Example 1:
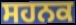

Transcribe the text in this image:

ਸਹਨਕ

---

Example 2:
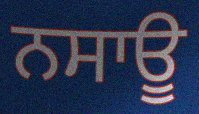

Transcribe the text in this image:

ਨਸਾਊ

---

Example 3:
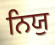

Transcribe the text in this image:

ਨਿਯੁ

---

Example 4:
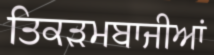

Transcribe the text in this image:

ਤਿਕੜਮਬਾਜੀਆਂ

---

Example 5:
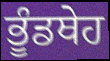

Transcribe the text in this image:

ਭੂੰਡਥੇਹ